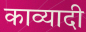
काव्यादी